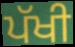
ਪੱਖੀ